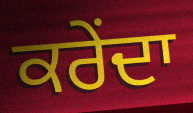
ਕਰੇਂਦਾ